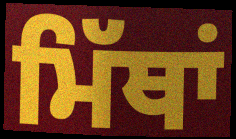
ਮਿੱਥਾਂ